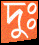
দুঃ